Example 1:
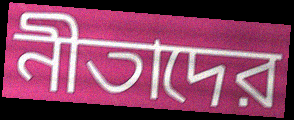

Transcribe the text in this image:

নীতাদের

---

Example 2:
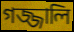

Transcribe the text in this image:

গজ্জালি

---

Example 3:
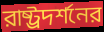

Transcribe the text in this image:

রাষ্ট্রদর্শনের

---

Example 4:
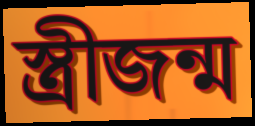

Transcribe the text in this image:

স্ত্রীজন্ম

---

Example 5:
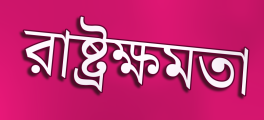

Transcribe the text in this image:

রাষ্ট্রক্ষমতা